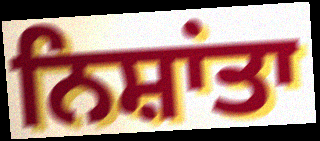
ਨਿਸ਼ਾਂਤਾ